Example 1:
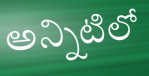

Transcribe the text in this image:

అన్నిటిలో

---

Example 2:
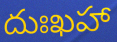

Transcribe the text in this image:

దుఃఖహా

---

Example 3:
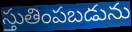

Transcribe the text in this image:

స్తుతింపబడును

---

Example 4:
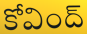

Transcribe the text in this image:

కోవింద్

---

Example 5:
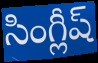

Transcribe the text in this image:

సింగ్లీష్